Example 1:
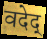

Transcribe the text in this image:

वदेद्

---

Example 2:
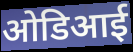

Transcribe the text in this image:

ओडिआई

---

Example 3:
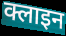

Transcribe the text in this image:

क्लाइन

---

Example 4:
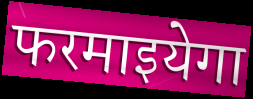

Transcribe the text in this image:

फरमाइयेगा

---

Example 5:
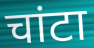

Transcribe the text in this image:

चांटा